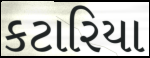
કટારિયા